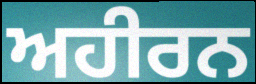
ਅਹੀਰਨ